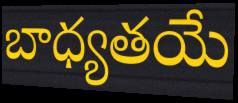
బాధ్యతయే